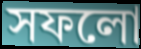
সফলো